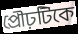
প্রৌঢ়টিকে